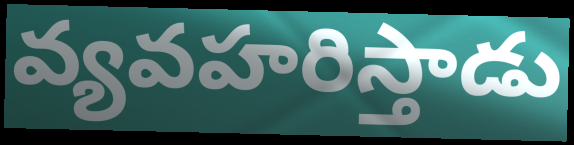
వ్యవహరిస్తాడు